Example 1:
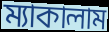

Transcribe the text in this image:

ম্যাকালাম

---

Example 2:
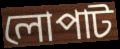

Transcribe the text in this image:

লোপাট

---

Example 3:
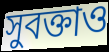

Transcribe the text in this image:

সুবক্তাও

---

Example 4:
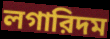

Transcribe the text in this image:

লগারিদম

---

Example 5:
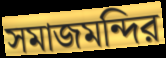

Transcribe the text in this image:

সমাজমন্দির